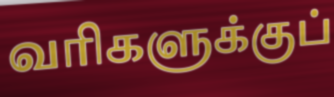
வரிகளுக்குப்